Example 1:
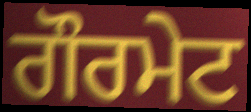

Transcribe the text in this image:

ਗੌਰਮੇਟ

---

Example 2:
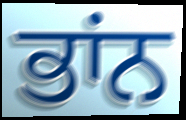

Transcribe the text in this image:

ਭਾਂਨ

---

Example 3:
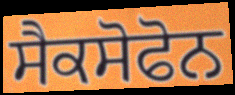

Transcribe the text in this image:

ਸੈਕਸੋਫੋਨ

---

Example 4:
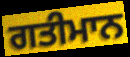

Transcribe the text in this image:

ਗਤੀਮਾਨ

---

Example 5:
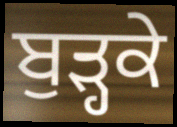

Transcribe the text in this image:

ਬੁੜ੍ਹਕੇ